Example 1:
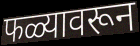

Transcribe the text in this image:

फळ्यावरून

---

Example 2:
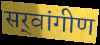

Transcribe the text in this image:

सर्वांगीण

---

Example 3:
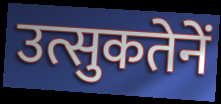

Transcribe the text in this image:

उत्सुकतेनें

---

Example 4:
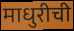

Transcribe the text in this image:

माधुरीची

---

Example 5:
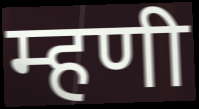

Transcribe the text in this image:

म्हणी